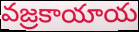
వజ్రకాయాయ